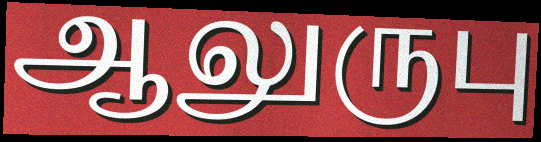
ஆலுருபு